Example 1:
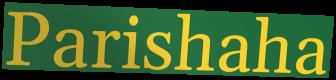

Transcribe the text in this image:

Parishaha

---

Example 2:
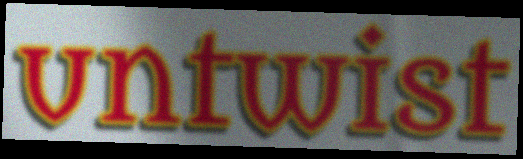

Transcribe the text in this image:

untwist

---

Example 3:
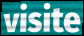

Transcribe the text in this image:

visite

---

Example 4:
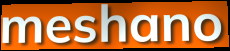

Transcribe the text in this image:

meshano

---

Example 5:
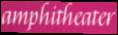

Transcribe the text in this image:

amphitheater